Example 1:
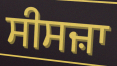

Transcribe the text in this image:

ਸੀਸਜ਼ਾ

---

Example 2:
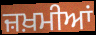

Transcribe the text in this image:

ਜ਼ਖ਼ਮੀਆਂ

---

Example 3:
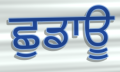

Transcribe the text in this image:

ਛੁਡਾਊ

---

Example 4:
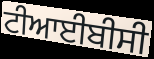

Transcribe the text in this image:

ਟੀਆਈਬੀਸੀ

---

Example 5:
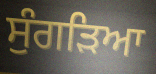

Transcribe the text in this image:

ਸੁੰਗੜਿਆ